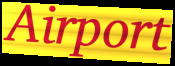
Airport